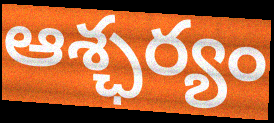
ఆశ్ఛర్యం